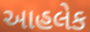
આહલેક